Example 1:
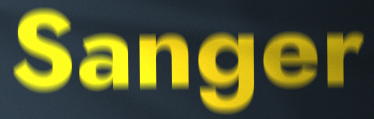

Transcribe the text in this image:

Sanger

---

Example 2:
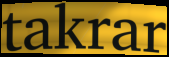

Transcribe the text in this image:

takrar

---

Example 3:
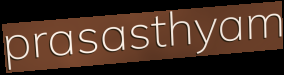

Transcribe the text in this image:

prasasthyam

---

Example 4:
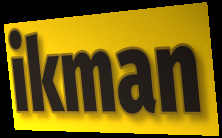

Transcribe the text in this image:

ikman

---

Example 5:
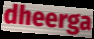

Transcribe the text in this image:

dheerga